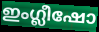
ഇംഗ്ലീഷോ